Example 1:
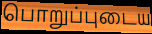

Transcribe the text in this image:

பொறுப்புடைய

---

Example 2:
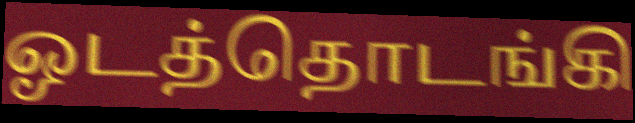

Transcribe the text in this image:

ஓடத்தொடங்கி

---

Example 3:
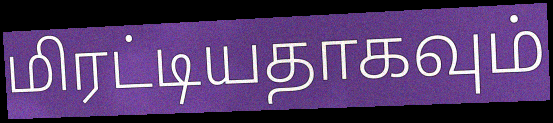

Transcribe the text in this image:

மிரட்டியதாகவும்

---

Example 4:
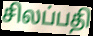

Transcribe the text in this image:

சிலப்பதி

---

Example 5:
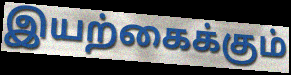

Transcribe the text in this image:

இயற்கைக்கும்